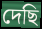
দেছি